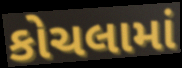
કોચલામાં